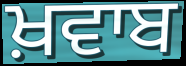
ਖ਼ਵਾਬ